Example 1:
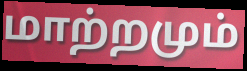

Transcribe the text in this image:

மாற்றமும்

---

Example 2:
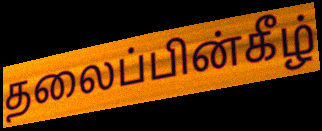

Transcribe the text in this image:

தலைப்பின்கீழ்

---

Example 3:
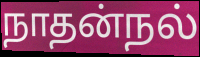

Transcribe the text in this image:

நாதன்நல்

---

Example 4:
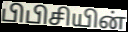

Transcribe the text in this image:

பிபிசியின்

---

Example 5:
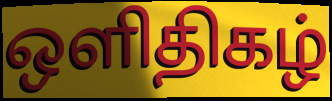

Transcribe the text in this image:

ஒளிதிகழ்